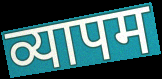
व्यापम